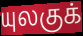
யுலகுக்